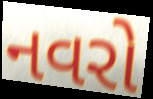
નવરો